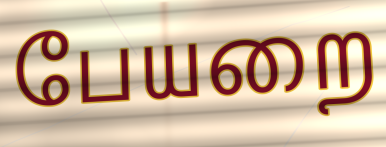
பேயறை